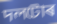
দলটোৰ